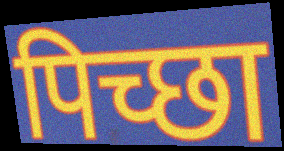
पिच्छा